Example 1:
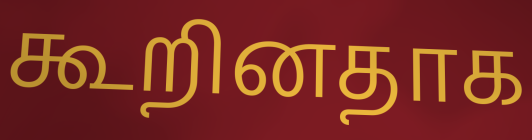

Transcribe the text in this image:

கூறினதாக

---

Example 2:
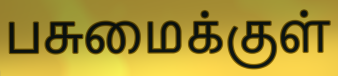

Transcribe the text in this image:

பசுமைக்குள்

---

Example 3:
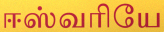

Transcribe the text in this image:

ஈஸ்வரியே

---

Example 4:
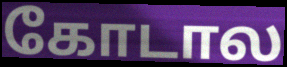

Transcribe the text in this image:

கோடால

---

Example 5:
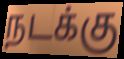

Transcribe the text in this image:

நடக்கு